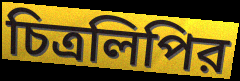
চিত্রলিপির